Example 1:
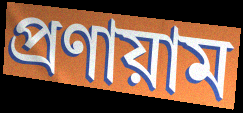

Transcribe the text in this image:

প্রণায়াম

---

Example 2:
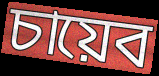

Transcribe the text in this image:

চায়েব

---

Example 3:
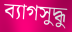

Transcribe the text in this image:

ব্যাগসুদ্ধু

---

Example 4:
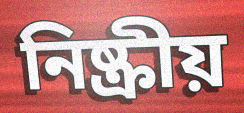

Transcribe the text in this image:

নিষ্ক্রীয়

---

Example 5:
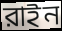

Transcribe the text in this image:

রাইন